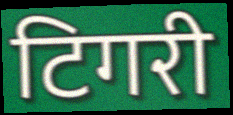
टिगरी